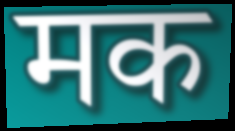
मक